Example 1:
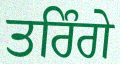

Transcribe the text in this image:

ਤਰਿੰਗੇ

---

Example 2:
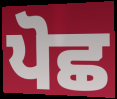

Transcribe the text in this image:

ਪੋਛ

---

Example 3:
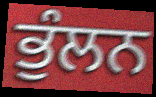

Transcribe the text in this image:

ਭੁੰਲਨ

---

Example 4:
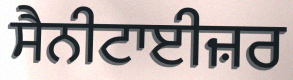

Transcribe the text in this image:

ਸੈਨੀਟਾਈਜ਼ਰ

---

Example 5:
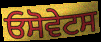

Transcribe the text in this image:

ਓਸੋਵੇਟਸ